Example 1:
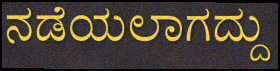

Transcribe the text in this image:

ನಡೆಯಲಾಗದ್ದು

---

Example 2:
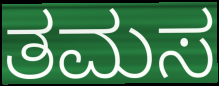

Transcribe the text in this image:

ತಮಸ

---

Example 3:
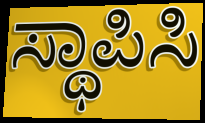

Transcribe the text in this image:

ಸ್ಥಾಪಿಸಿ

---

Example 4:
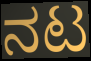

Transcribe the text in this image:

ನಟ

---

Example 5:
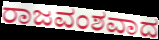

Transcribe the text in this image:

ರಾಜವಂಶವಾದ